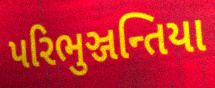
પરિભુઞ્જન્તિયા